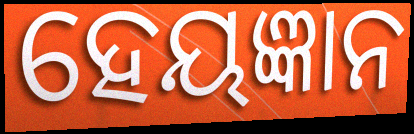
ହେୟଜ୍ଞାନ